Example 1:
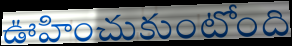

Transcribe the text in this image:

ఊహించుకుంటోంది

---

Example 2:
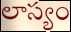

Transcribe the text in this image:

లాస్యం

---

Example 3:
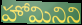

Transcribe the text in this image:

హోమినిని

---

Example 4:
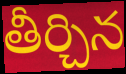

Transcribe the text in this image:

తీర్చిన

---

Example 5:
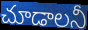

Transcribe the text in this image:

చూడాలనీ